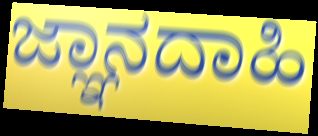
ಜ್ಞಾನದಾಹಿ